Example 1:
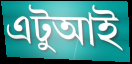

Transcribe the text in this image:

এটুআই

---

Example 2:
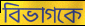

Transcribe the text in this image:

বিভাগকে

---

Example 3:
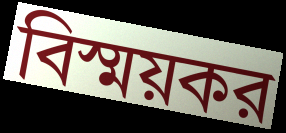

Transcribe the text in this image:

বিস্ময়কর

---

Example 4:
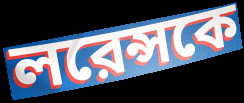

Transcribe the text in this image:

লরেন্সকে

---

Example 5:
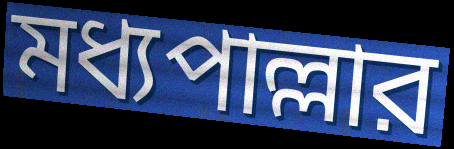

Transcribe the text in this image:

মধ্যপাল্লার